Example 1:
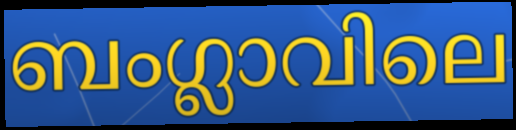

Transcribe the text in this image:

ബംഗ്ലാവിലെ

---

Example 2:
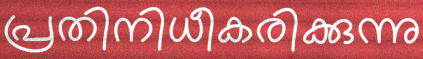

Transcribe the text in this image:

പ്രതിനിധീകരിക്കുന്നു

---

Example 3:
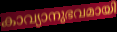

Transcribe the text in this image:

കാവ്യാനുഭവമായി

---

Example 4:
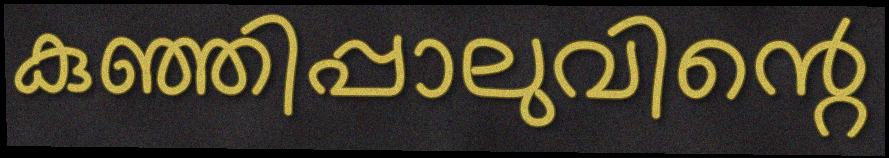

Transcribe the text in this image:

കുഞ്ഞിപ്പാലുവിന്റെ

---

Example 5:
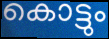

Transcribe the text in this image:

കൊട്ടും